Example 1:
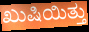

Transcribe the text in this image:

ಖುಷಿಯಿತ್ತು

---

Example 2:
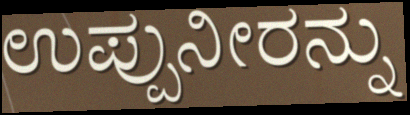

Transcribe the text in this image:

ಉಪ್ಪುನೀರನ್ನು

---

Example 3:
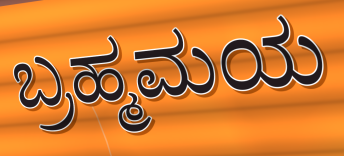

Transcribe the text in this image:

ಬ್ರಹ್ಮಮಯ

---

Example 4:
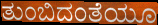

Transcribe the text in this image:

ತುಂಬಿದಂತೆಯೂ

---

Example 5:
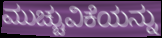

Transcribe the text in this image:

ಮುಚ್ಚುವಿಕೆಯನ್ನು